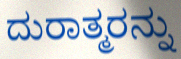
ದುರಾತ್ಮರನ್ನು